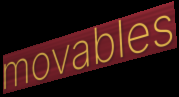
movables